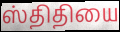
ஸ்திதியை